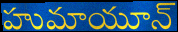
హుమాయూన్